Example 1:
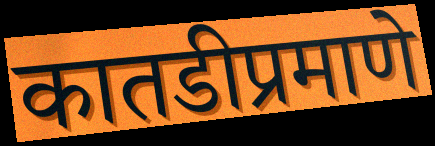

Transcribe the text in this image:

कातडीप्रमाणे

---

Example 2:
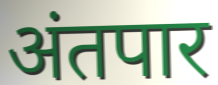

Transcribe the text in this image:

अंतपार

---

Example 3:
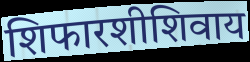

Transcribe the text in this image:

शिफारशीशिवाय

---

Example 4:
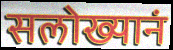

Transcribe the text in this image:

सलोख्यानं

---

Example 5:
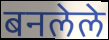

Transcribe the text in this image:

बनलेले